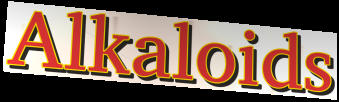
Alkaloids